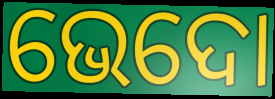
ଭେଦୋ